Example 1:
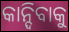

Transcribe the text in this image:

କାନ୍ଦିବାକୁ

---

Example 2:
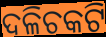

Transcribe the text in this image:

ଦଳିଚକଟି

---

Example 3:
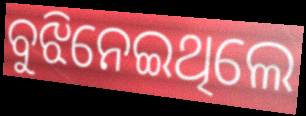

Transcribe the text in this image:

ବୁଝିନେଇଥିଲେ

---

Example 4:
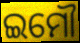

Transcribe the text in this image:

ଇମୌ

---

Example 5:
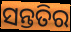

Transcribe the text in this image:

ସନ୍ତତିର